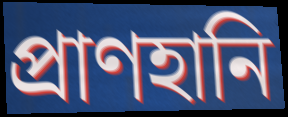
প্রাণহানি